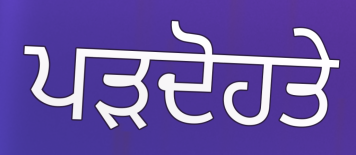
ਪੜਦੋਹਤੇ